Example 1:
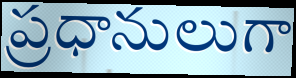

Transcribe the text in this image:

ప్రధానులుగా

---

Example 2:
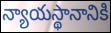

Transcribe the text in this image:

న్యాయస్థానానికి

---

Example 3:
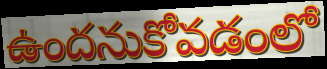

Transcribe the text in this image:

ఉందనుకోవడంలో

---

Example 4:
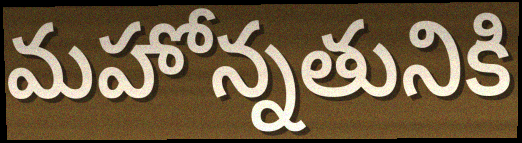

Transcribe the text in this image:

మహోన్నతునికి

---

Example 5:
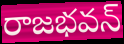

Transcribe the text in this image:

రాజభవన్